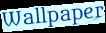
Wallpaper